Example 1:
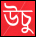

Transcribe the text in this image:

উচু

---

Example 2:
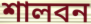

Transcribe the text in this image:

শালবন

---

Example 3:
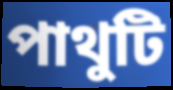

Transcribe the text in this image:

পাথুটি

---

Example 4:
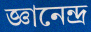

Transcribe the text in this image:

জ্ঞানেন্দ্র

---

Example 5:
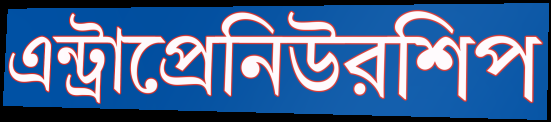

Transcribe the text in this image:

এন্ট্রাপ্রেনিউরশিপ